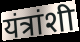
यंत्रांशी